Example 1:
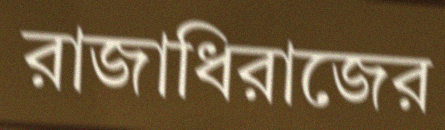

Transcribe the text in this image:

রাজাধিরাজের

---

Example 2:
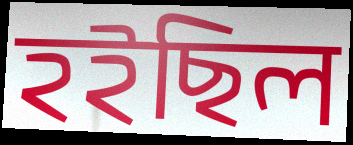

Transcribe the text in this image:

হইছিল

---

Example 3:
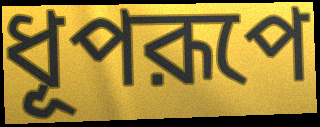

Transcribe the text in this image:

ধূপরূপে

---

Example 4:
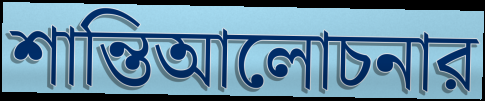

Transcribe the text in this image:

শান্তিআলোচনার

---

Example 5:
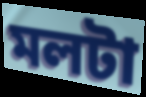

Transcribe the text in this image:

মলটা